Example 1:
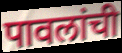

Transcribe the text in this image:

पावलांची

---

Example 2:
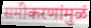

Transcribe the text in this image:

समीकरणांमुळं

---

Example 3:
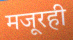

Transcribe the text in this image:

मजूरही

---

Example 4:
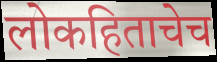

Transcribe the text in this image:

लोकहिताचेच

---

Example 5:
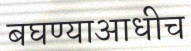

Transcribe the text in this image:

बघण्याआधीच